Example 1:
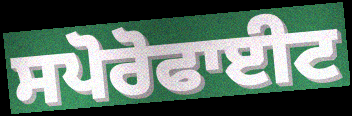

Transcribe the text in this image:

ਸਪੋਰੋਫਾਈਟ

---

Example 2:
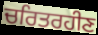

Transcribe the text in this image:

ਚਰਿਤਰਹੀਣ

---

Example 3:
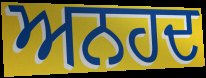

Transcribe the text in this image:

ਅਨਹਦ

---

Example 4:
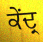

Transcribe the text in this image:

ਕੇਂਦ੍ਰ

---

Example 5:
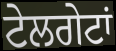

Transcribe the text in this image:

ਟੇਲਗੇਟਾਂ